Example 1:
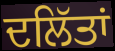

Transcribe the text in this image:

ਦਲਿੱਤਾਂ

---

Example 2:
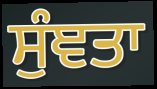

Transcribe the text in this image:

ਸੁੰਞਤਾ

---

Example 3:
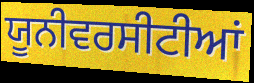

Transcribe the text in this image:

ਯੂਨੀਵਰਸੀਟੀਆਂ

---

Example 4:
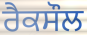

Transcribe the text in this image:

ਰੈਕਸੌਲ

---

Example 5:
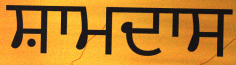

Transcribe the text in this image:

ਸ਼ਾਮਦਾਸ